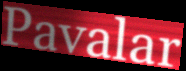
Pavalar